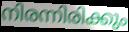
നിരന്നിരിക്കും